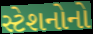
સ્ટેશનોનો